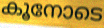
കൂനോടെ